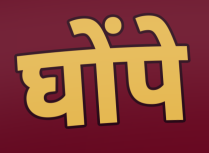
घोंपे